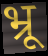
भ्रू